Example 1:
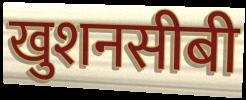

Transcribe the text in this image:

खुशनसीबी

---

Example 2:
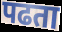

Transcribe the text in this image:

पढता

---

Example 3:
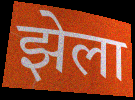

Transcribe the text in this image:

झेला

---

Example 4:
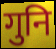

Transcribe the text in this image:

गुनि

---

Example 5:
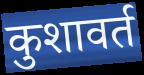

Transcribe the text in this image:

कुशावर्त